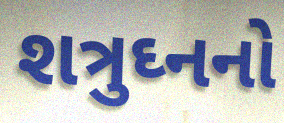
શત્રુઘ્નનો